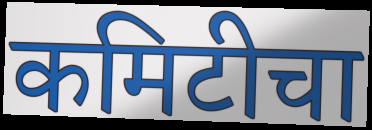
कमिटीचा